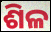
ଶିଳ